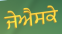
ਜੇਐਸਕੇ